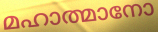
മഹാത്മാനോ